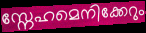
സ്നേഹമെനിക്കേറും